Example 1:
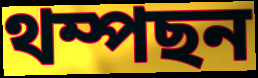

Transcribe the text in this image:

থম্পছন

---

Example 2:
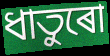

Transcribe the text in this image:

ধাতুৰো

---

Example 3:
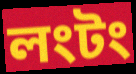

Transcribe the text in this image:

লংটং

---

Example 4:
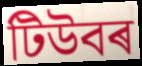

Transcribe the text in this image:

টিউবৰ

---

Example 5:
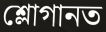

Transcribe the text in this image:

শ্লোগানত